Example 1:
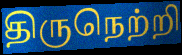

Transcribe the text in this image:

திருநெற்றி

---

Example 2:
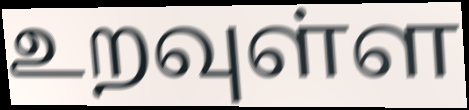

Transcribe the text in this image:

உறவுள்ள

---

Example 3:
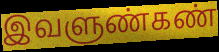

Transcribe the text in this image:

இவளுண்கண்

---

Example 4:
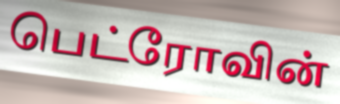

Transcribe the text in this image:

பெட்ரோவின்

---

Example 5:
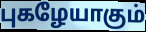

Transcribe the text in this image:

புகழேயாகும்